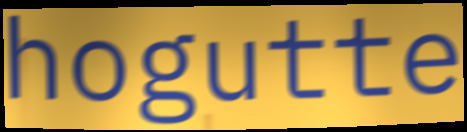
hogutte